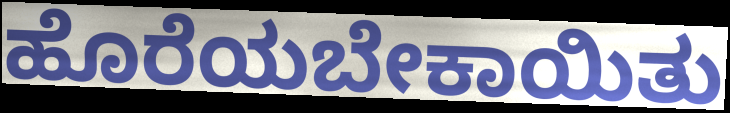
ಹೊರೆಯಬೇಕಾಯಿತು